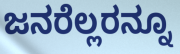
ಜನರೆಲ್ಲರನ್ನೂ